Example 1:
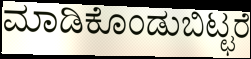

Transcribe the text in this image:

ಮಾಡಿಕೊಂಡುಬಿಟ್ಟರೆ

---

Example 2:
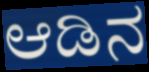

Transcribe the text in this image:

ಆಡಿನ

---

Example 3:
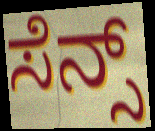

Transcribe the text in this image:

ಸೆನ್ಸ್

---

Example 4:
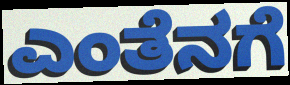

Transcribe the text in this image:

ಎಂತೆನಗೆ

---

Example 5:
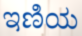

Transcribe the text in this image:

ಇಣಿಯ